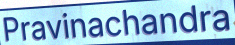
Pravinachandra